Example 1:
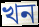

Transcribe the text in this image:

খন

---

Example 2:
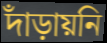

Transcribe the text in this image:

দাঁড়ায়নি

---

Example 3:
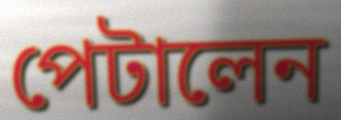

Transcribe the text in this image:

পেটালেন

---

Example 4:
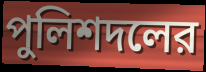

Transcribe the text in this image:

পুলিশদলের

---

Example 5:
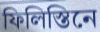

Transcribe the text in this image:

ফিলিস্তিনে